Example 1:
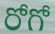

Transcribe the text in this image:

రోగో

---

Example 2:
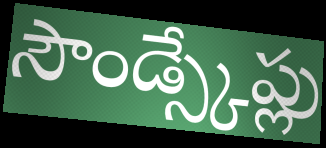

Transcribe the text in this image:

సౌండ్స్కేప్లు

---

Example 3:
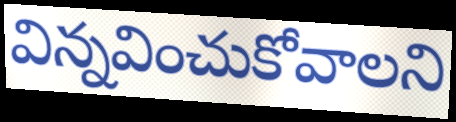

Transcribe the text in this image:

విన్నవించుకోవాలని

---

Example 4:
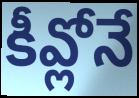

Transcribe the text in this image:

కీవ్లోనే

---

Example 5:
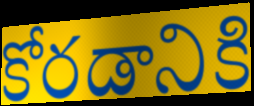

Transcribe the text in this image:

కోరడానికి